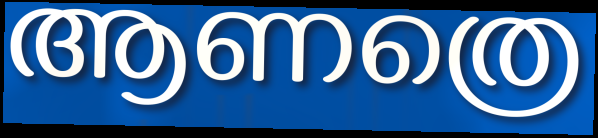
ആണത്രെ